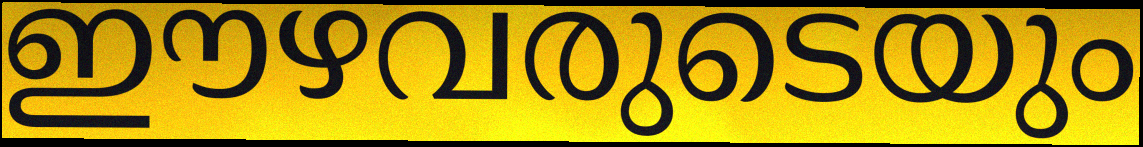
ഈഴവരുടെയും